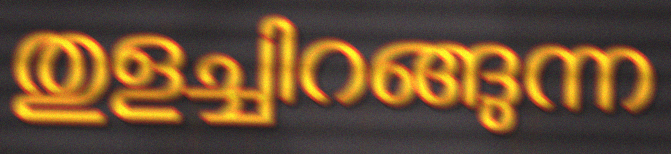
തുളച്ചിറങ്ങുന്ന